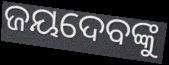
ଜୟଦେବଙ୍କୁ